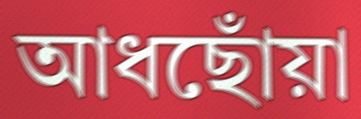
আধছোঁয়া